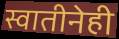
स्वातीनेही